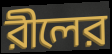
রীলের